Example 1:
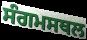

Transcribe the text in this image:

ਸੰਗਮਸਥਲ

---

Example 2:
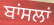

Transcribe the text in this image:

ਬਾਂਸਲਾਂ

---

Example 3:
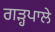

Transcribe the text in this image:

ਗੜ੍ਹਪਾਲੇ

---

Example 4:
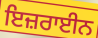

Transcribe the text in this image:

ਇਜ਼ਰਾਈਨ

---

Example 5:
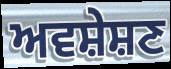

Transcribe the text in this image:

ਅਵਸ਼ੇਸ਼ਣ